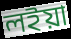
লইয়া